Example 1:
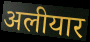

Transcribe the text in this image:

अलीयार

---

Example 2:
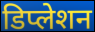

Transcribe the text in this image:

डिप्लेशन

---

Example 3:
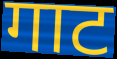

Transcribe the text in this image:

गाट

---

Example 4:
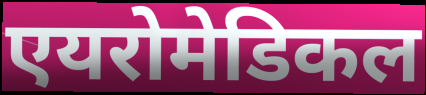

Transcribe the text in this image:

एयरोमेडिकल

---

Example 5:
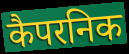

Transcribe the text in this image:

कैपरनिक